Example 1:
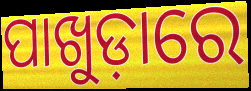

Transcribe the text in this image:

ପାଖୁଡ଼ାରେ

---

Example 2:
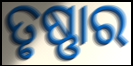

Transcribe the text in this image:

ତୃଷ୍ଣାର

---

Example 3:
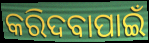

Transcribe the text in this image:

କରିଦବାପାଇଁ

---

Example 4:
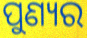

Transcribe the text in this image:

ପୁଣ୍ୟର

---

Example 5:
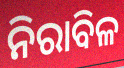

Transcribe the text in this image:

ନିରାବିଳ